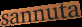
sannuta